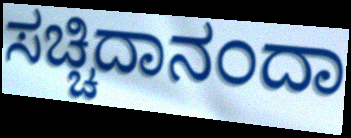
ಸಚ್ಚಿದಾನಂದಾ